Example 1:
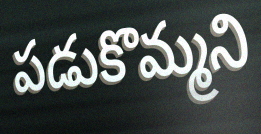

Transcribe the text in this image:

పడుకొమ్మని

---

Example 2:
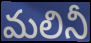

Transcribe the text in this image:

మలినీ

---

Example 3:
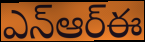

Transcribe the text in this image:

ఎన్ఆర్ఈ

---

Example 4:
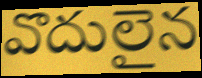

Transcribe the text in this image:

వొదులైన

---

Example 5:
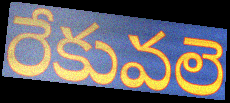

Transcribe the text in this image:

రేకువలె